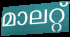
മാലറ്റ്